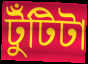
টুঁটিটা